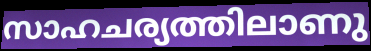
സാഹചര്യത്തിലാണു